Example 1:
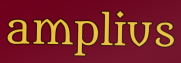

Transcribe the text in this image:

amplius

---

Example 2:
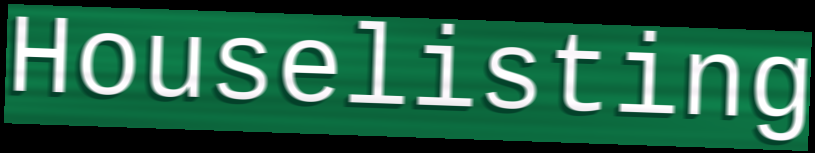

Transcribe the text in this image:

Houselisting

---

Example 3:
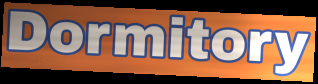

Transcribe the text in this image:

Dormitory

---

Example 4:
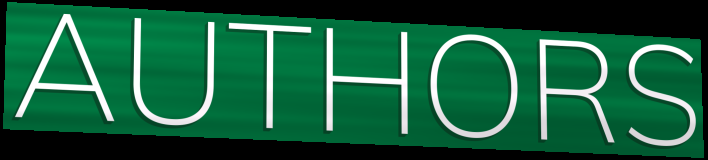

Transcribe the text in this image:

AUTHORS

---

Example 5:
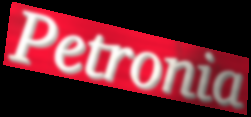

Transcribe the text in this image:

Petronia